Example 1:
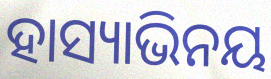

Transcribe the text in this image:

ହାସ୍ୟାଭିନୟ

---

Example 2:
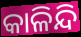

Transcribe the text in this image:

କାଳିନ୍ଦି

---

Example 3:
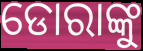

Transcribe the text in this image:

ଡୋରାଙ୍କୁ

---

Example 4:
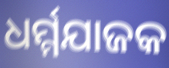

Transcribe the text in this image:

ଧର୍ମ୍ମଯାଜକ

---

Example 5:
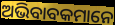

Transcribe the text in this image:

ଅଭିବାବକମାନେ